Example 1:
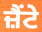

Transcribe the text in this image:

ਜ਼ੈਂਟੇ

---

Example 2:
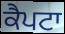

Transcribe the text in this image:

ਕੈਪਟਾ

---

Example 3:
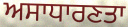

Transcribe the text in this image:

ਅਸਾਧਾਰਣਤਾ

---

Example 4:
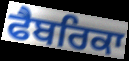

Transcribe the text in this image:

ਫੈਬਰਿਕਾ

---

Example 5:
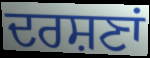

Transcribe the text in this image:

ਦਰਸ਼ਣਾਂ